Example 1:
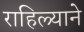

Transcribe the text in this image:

राहिल्याने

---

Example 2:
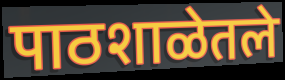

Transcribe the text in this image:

पाठशाळेतले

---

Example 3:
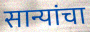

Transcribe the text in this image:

सान्यांचा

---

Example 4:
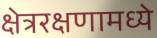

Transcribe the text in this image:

क्षेत्ररक्षणामध्ये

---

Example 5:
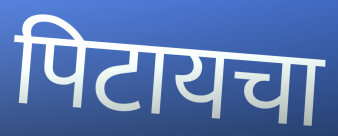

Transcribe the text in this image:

पिटायचा